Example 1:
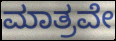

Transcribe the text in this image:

ಮಾತ್ರವೇ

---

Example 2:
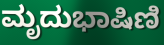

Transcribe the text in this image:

ಮೃದುಭಾಷಿಣಿ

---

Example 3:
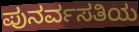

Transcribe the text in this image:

ಪುನರ್ವಸತಿಯ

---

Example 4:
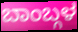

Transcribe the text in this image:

ಬಾಂಬ್ಗಳ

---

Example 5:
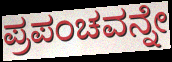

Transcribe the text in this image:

ಪ್ರಪಂಚವನ್ನೇ